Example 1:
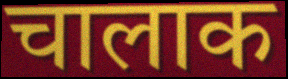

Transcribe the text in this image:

चालाक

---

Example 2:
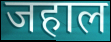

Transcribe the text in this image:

जहाल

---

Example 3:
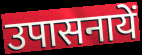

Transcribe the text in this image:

उपासनायें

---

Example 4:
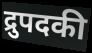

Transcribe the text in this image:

द्रुपदकी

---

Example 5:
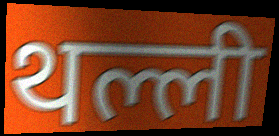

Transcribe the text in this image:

थल्ली